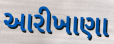
આરીખાણા